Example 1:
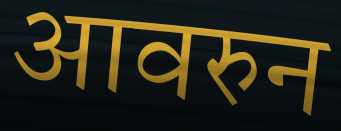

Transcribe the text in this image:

आवरुन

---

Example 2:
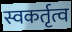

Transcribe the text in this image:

स्वकर्तृत्व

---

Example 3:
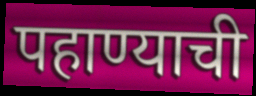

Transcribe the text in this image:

पहाण्याची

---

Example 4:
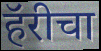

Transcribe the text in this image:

हॅरीचा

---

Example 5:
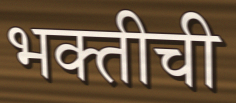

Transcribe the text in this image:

भक्तीची